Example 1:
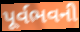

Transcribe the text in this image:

પૂર્વભવની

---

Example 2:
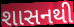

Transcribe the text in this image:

શાસનથી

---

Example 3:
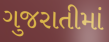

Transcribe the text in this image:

ગુજરાતીમાં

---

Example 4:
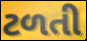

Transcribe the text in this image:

ટળતી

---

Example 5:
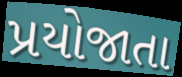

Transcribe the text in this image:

પ્રયોજાતા